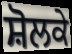
ਸ਼ੋਲਕੇ